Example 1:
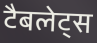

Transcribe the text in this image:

टैबलेट्स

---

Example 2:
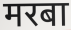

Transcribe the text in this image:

मरबा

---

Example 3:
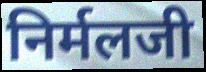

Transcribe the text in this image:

निर्मलजी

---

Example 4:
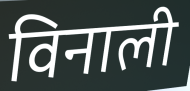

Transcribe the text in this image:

विनाली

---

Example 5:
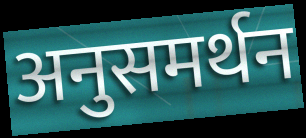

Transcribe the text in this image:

अनुसमर्थन